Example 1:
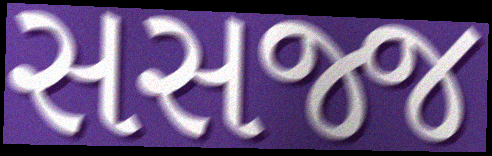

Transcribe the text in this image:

સસજ્જ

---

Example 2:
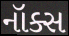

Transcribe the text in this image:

નૉક્સ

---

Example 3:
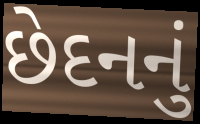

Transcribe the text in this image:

છેદનનું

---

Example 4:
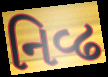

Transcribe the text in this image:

નિવ્ઢ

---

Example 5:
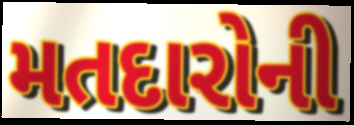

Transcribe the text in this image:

મતદારોની